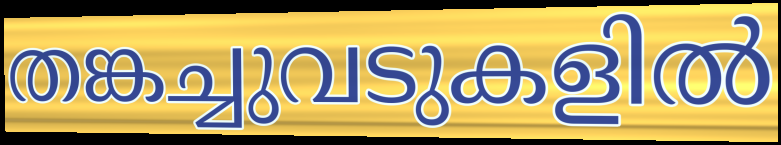
തങ്കച്ചുവടുകളിൽ